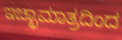
ಇಚ್ಛಾಮಾತ್ರದಿಂದ